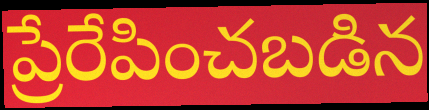
ప్రేరేపించబడిన